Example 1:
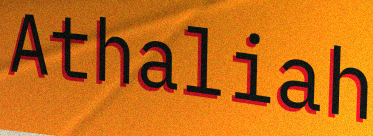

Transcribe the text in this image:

Athaliah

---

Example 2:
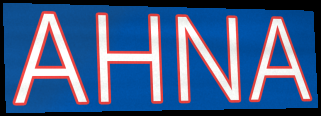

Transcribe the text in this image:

AHNA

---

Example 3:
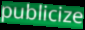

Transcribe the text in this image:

publicize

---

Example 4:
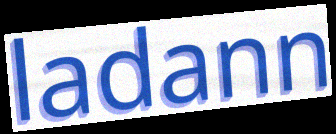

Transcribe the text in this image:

ladann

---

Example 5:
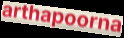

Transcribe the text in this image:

arthapoorna